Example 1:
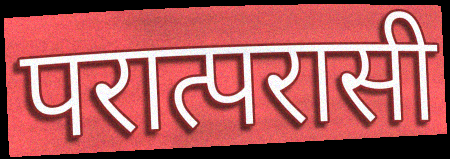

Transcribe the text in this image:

परात्परासी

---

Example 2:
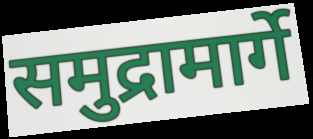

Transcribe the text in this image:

समुद्रामार्गे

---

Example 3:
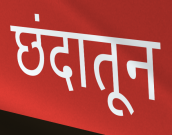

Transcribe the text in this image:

छंदातून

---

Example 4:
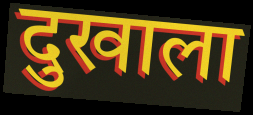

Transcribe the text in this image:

दुखाला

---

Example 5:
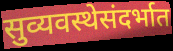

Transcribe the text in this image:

सुव्यवस्थेसंदर्भात